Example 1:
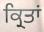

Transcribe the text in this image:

ਕ੍ਰਿਤਾਂ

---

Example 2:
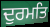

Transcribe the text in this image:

ਦੁਰਮਤਿ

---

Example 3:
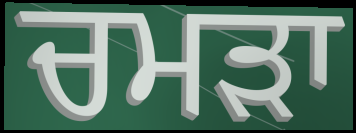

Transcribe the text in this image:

ਚਮੜਾ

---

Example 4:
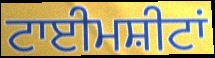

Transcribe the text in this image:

ਟਾਈਮਸ਼ੀਟਾਂ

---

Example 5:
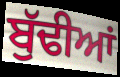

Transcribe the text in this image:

ਬੁੱਢੀਆਂ